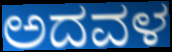
ಅದವಳ